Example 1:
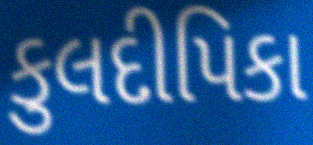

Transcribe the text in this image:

કુલદીપિકા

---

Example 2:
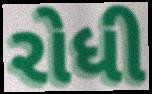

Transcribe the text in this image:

રોધી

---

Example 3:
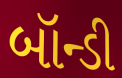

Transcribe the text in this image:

બૉન્ડી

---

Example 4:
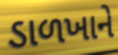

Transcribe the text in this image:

ડાળખાને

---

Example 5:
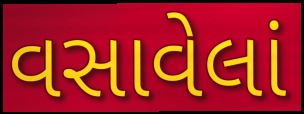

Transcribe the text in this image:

વસાવેલાં